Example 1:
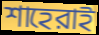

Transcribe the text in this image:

শাহেরাই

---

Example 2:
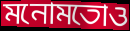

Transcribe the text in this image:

মনোমতোও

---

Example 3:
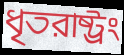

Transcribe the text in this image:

ধৃতরাষ্ট্রং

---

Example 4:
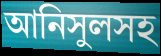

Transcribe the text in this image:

আনিসুলসহ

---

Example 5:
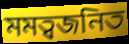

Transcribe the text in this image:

মমত্বজনিত